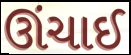
ઊંચાઈ